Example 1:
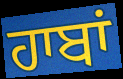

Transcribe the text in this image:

ਹਾਬਾਂ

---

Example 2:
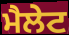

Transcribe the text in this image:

ਮੈਲੇਟ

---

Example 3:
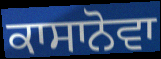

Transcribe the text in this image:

ਕਾਸਾਨੋਵਾ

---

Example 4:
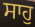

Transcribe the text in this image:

ਸਾਹੁ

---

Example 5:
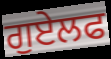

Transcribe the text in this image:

ਗੁਏਲਫ